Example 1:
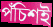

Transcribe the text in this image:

পঁচিশই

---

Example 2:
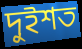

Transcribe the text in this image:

দুইশত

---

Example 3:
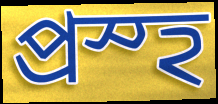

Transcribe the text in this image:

প্রস্হ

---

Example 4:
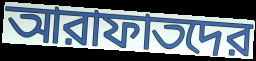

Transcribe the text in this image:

আরাফাতদের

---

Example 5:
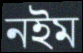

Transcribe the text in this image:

নইম